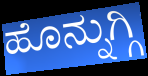
ಹೊನ್ನುಗ್ಗಿ